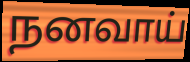
நனவாய்